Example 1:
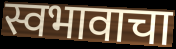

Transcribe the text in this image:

स्वभावाचा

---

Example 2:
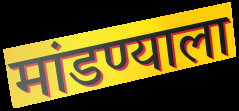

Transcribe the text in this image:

मांडण्याला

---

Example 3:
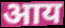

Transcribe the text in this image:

आय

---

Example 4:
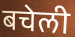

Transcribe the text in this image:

बचेली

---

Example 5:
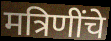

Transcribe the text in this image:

मत्रिणींचे